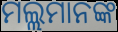
ମଲ୍ଲମାନଙ୍କ